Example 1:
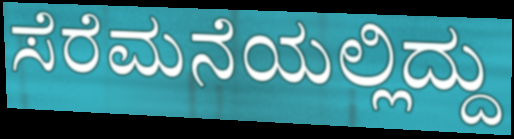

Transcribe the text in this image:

ಸೆರೆಮನೆಯಲ್ಲಿದ್ದು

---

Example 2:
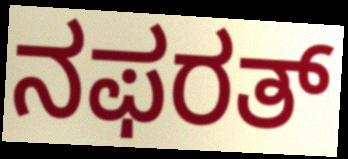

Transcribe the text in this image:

ನಫರತ್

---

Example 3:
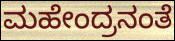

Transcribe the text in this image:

ಮಹೇಂದ್ರನಂತೆ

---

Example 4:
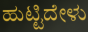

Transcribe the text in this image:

ಹುಟ್ಟಿದೇಳು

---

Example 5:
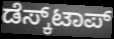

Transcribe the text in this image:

ಡೆಸ್ಕ್‌ಟಾಪ್